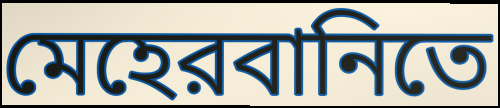
মেহেরবানিতে